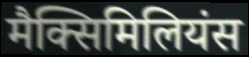
मैक्सिमिलियंस